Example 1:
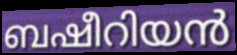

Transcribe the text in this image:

ബഷീറിയൻ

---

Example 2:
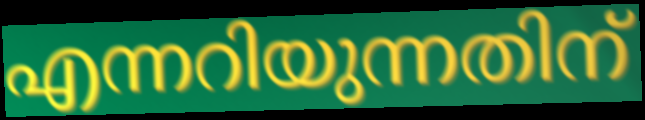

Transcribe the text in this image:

എന്നറിയുന്നതിന്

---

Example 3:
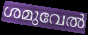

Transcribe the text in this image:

ശമുവേൽ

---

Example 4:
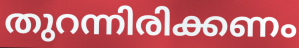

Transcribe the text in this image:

തുറന്നിരിക്കണം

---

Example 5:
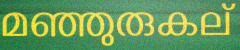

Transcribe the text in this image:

മഞ്ഞുരുകല്